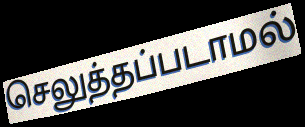
செலுத்தப்படாமல்